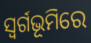
ସ୍ଵର୍ଗଭୂମିରେ